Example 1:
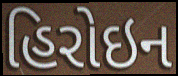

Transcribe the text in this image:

હિરોઇન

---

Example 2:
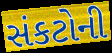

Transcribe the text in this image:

સંકટોની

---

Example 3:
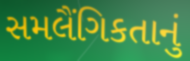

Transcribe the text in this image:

સમલૈંગિકતાનું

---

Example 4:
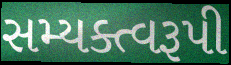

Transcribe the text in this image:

સમ્યક્ત્વરૂપી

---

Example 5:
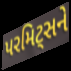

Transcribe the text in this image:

પરમિટ્સને